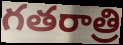
గతరాత్రి